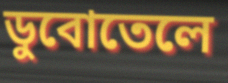
ডুবোতেলে